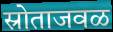
स्रोताजवळ